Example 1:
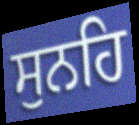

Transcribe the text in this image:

ਸੁਨਹਿ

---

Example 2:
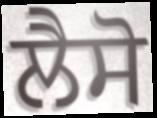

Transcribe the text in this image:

ਲੈਸੋ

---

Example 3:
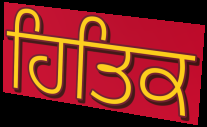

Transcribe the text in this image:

ਹਿਤਿਕ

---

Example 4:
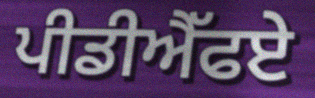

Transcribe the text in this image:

ਪੀਡੀਐੱਫਏ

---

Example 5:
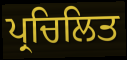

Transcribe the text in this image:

ਪ੍ਰਚਿਲਿਤ